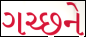
ગચ્છને